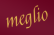
meglio